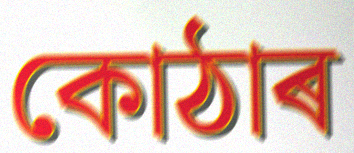
কোঠাৰ